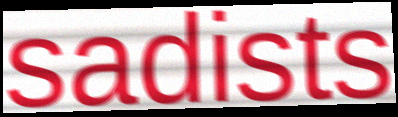
sadists